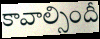
కావాల్సిందీ